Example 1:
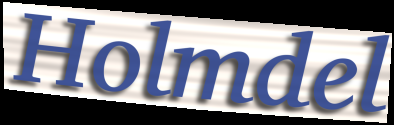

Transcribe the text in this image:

Holmdel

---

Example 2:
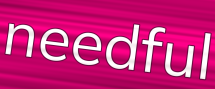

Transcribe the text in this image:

needful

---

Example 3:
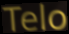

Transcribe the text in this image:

Telo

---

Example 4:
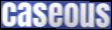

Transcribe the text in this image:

caseous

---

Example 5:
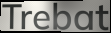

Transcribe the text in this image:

Trebat